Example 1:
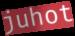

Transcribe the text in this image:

juhot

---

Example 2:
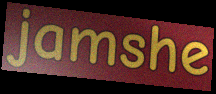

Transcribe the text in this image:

jamshe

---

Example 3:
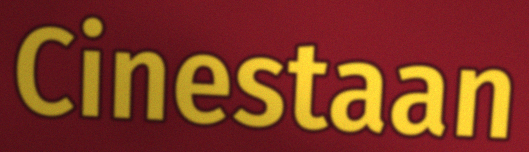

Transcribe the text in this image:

Cinestaan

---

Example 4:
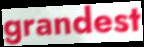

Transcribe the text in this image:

grandest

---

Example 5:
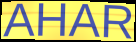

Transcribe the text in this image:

AHAR